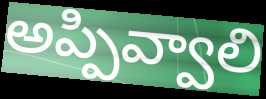
అప్పివ్వాలి